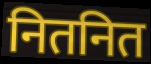
नितनित